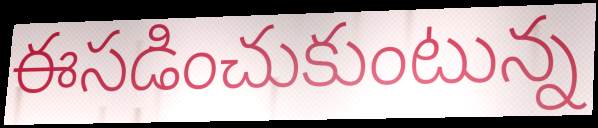
ఈసడించుకుంటున్న